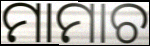
ମାମାଚ